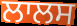
ਲਾਲਸ